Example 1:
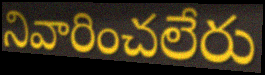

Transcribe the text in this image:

నివారించలేరు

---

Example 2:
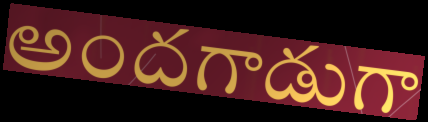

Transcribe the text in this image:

అందగాడుగా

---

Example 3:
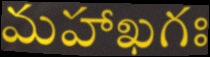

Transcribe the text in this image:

మహాఖగః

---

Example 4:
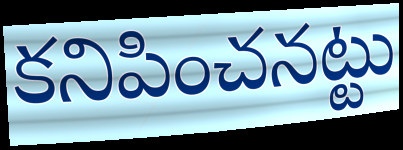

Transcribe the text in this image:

కనిపించనట్టు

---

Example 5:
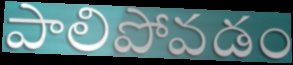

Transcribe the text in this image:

పాలిపోవడం